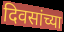
दिवसांच्या